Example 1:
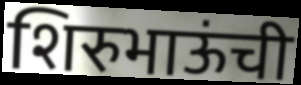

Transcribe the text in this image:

शिरुभाऊंची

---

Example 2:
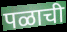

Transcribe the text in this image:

पळाची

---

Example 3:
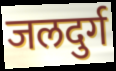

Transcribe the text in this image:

जलदुर्ग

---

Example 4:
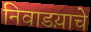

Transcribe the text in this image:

निवाडय़ाचे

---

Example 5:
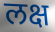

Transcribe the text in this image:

लक्ष